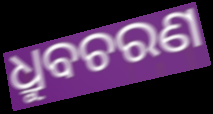
ଧ୍ରୁବଚରଣ